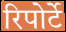
रिपोर्टे